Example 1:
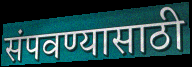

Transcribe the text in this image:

संपवण्यासाठी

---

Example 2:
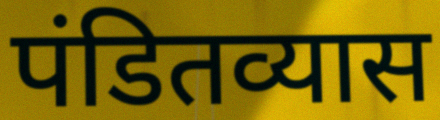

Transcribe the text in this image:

पंडितव्यास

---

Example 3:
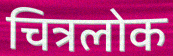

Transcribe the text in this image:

चित्रलोक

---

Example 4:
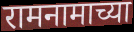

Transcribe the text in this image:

रामनामाच्या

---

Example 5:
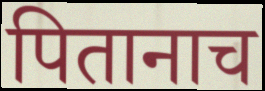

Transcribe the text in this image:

पितानाच